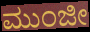
ಮುಂಜೀ